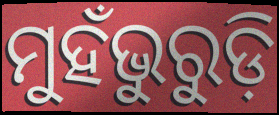
ମୁହଁଭୁରୁଡ଼ି